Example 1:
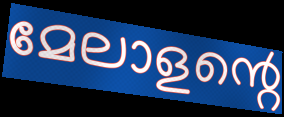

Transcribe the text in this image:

മേലാളന്റെ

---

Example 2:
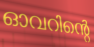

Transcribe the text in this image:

ഓവറിന്റെ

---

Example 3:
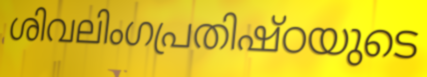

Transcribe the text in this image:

ശിവലിംഗപ്രതിഷ്ഠയുടെ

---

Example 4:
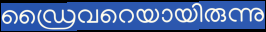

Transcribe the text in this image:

ഡ്രൈവറെയായിരുന്നു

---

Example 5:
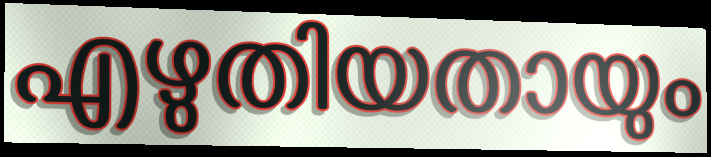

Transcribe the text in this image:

എഴുതിയതായും